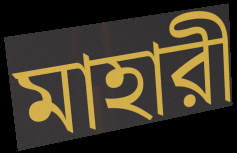
মাহারী